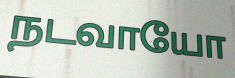
நடவாயோ